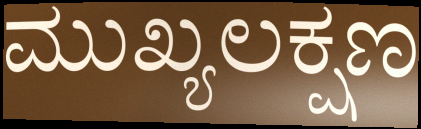
ಮುಖ್ಯಲಕ್ಷಣ